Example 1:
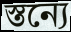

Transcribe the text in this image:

স্তন্যে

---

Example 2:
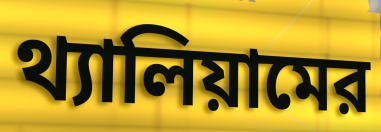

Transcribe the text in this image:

থ্যালিয়ামের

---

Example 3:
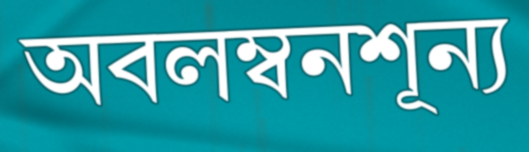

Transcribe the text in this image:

অবলম্বনশূন্য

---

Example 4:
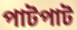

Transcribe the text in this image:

পাটপাট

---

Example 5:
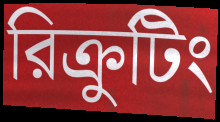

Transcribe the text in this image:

রিক্রুটিং